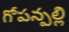
గోపన్పల్లి